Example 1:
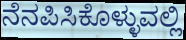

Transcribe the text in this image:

ನೆನಪಿಸಿಕೊಳ್ಳುವಲ್ಲಿ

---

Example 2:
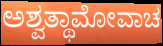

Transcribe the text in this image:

ಅಶ್ವತ್ಥಾಮೋವಾಚ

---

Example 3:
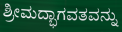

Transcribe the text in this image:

ಶ್ರೀಮದ್ಭಾಗವತವನ್ನು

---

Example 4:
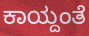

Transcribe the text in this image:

ಕಾಯ್ದಂತೆ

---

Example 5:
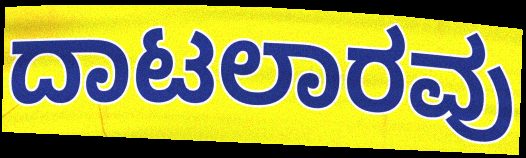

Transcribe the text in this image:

ದಾಟಲಾರವು